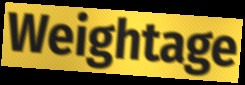
Weightage